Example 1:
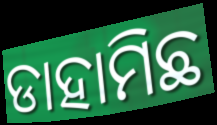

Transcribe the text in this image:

ଡାହାମିଛ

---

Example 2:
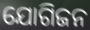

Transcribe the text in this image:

ଯୋଗିଜନ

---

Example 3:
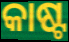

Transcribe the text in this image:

କାଷ୍ଟ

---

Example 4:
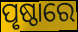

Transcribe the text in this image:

ପୃଷ୍ଠାରେ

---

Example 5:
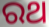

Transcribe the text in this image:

ରଥ